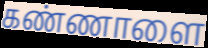
கண்ணாளை